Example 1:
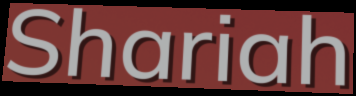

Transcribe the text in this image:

Shariah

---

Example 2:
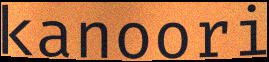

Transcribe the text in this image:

kanoori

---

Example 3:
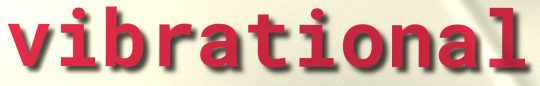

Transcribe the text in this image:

vibrational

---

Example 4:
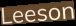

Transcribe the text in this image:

Leeson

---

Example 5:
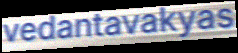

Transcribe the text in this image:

vedantavakyas